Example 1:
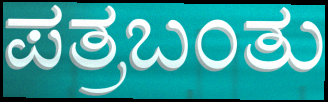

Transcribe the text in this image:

ಪತ್ರಬಂತು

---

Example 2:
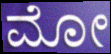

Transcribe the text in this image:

ಮೋ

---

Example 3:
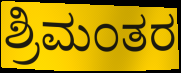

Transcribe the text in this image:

ಶ್ರಿಮಂತರ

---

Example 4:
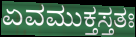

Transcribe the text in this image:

ಏವಮುಕ್ತಸ್ತತಃ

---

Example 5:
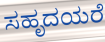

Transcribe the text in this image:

ಸಹೃದಯರೆ